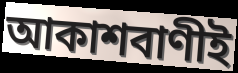
আকাশবাণীই